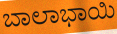
ಬಾಲಾಭಾಯಿ